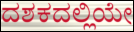
ದಶಕದಲ್ಲಿಯೇ